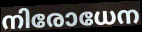
നിരോധേന